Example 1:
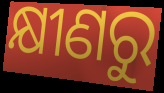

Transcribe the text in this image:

କ୍ଷୀଣରୁ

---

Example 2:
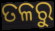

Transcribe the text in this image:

ତଳରୁ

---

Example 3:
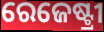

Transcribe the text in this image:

ରେଜେଷ୍ଟ୍ରୀ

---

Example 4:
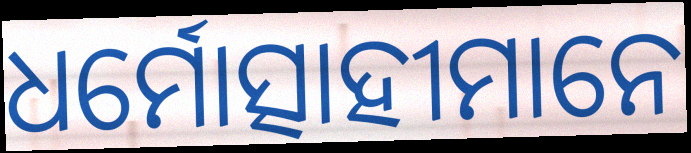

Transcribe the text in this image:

ଧର୍ମୋତ୍ସାହୀମାନେ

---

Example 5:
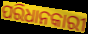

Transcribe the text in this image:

ପରିଧାନକାରୀ